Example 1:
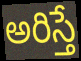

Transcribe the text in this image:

అరిస్తే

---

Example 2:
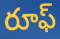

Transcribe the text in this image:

రూఫ్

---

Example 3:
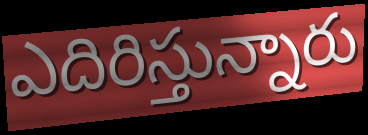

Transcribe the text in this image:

ఎదిరిస్తున్నారు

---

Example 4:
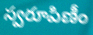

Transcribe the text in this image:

స్వరూపిణీం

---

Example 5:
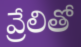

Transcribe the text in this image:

వ్రేలితో